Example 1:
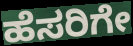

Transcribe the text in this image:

ಹೆಸರಿಗೇ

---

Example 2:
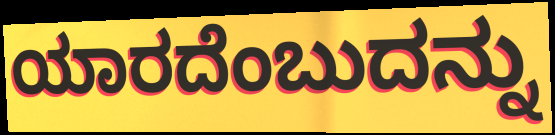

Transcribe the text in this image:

ಯಾರದೆಂಬುದನ್ನು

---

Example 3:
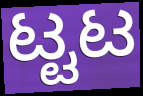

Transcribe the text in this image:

ಟ್ಟಟ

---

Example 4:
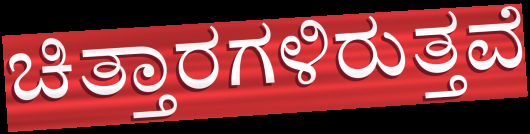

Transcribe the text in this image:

ಚಿತ್ತಾರಗಳಿರುತ್ತವೆ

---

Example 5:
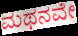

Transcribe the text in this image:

ಮಥನವೇ